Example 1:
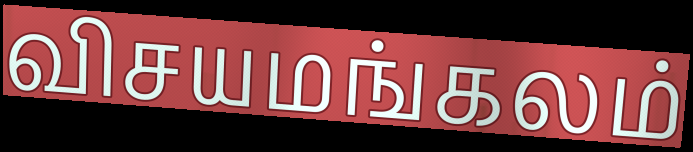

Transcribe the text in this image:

விசயமங்கலம்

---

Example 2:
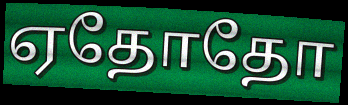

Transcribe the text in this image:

ஏதோதோ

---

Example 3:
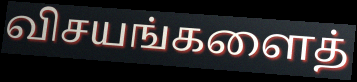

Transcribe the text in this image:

விசயங்களைத்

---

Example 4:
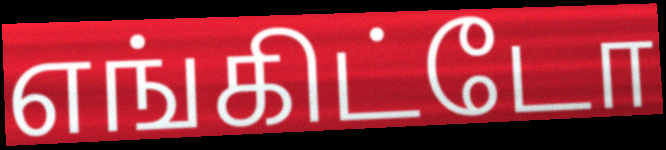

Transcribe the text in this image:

எங்கிட்டோ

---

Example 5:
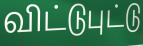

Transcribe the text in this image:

விட்டுபுட்டு